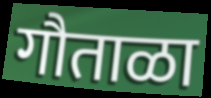
गौताळा